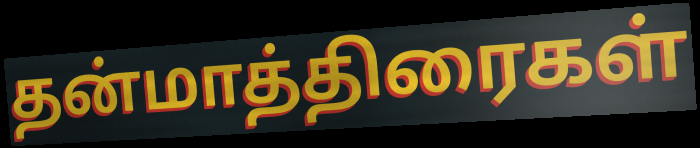
தன்மாத்திரைகள்